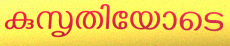
കുസൃതിയോടെ